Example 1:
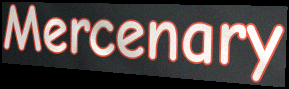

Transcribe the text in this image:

Mercenary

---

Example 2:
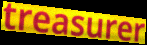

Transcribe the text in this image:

treasurer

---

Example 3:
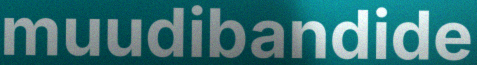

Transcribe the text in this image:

muudibandide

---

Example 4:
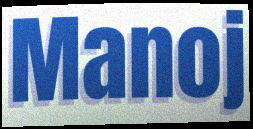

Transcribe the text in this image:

Manoj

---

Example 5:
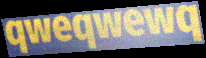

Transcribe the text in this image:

qweqwewq